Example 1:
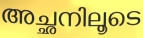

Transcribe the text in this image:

അച്ഛനിലൂടെ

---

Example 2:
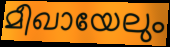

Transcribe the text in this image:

മീഖായേലും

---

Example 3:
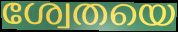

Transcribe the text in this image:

ശ്വേതയെ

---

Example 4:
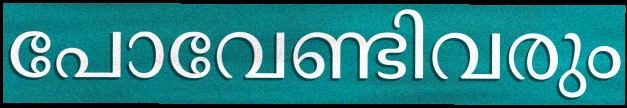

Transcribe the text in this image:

പോവേണ്ടിവരും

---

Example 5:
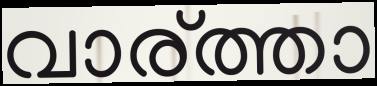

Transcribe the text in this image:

വാര്ത്താ